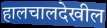
हालचालदेखील